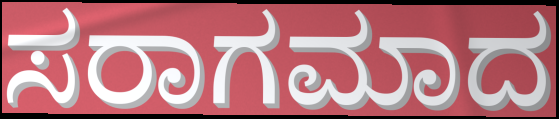
ಸರಾಗಮಾದ